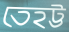
তেহট্ট